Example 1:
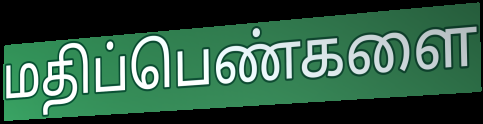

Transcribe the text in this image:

மதிப்பெண்களை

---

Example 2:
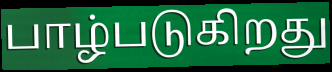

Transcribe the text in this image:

பாழ்படுகிறது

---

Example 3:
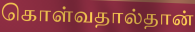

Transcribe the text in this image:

கொள்வதால்தான்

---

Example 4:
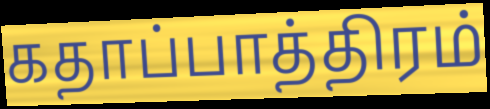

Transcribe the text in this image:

கதாப்பாத்திரம்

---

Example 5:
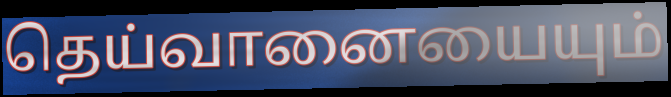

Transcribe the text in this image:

தெய்வானையையும்